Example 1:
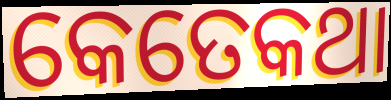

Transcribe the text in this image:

କେତେକଥା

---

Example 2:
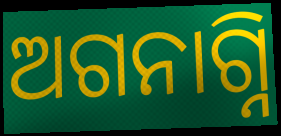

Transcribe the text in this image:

ଅଗନାଗ୍ନି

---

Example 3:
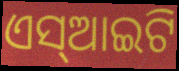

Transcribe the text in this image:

ଏସ୍ଆଇଟି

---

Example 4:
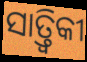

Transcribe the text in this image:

ସାତ୍ତ୍ୱିକୀ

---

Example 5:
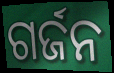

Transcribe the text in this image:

ଗର୍ଜନ